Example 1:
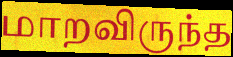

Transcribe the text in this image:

மாறவிருந்த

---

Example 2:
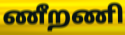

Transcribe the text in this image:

ணீறணி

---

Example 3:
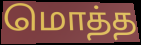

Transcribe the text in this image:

மொத்த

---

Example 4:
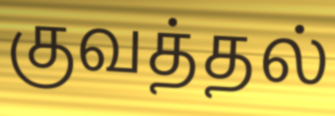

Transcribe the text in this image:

குவத்தல்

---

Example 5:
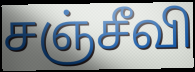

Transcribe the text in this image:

சஞ்சீவி